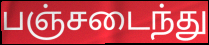
பஞ்சடைந்து